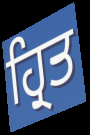
ਹ੍ਰਿਤ